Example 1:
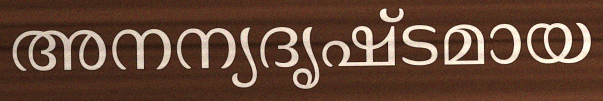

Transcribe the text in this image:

അനന്യദൃഷ്ടമായ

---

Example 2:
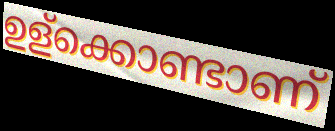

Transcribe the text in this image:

ഉള്ക്കൊണ്ടാണ്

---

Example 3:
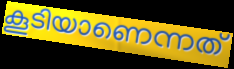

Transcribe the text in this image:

കൂടിയാണെന്നത്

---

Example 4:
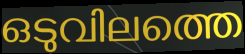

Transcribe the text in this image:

ഒടുവിലത്തെ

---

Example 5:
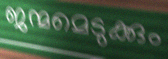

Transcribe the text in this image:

ജന്മമെടുക്കും